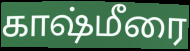
காஷ்மீரை